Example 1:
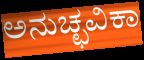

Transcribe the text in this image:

ಅನುಚ್ಛವಿಕಾ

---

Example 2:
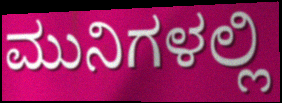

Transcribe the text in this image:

ಮುನಿಗಳಲ್ಲಿ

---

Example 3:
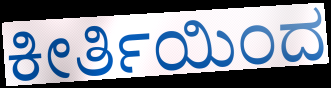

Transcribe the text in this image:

ಕೀರ್ತಿಯಿಂದ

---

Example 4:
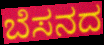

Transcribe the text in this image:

ಬೆಸನದ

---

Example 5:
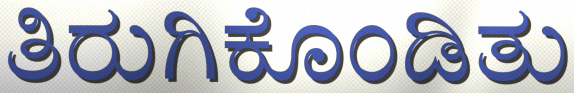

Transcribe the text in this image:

ತಿರುಗಿಕೊಂಡಿತು